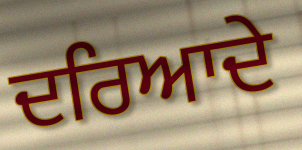
ਦਰਿਆਦੇ